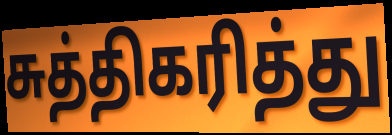
சுத்திகரித்து